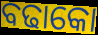
ବଢାକୋ